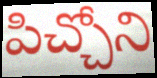
పిచ్చోని